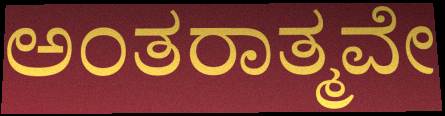
ಅಂತರಾತ್ಮವೇ